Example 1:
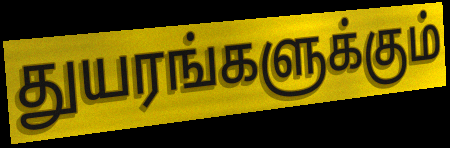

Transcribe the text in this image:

துயரங்களுக்கும்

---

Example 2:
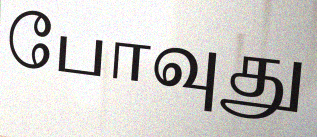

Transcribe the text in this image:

போவுது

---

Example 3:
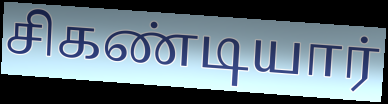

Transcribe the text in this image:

சிகண்டியார்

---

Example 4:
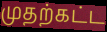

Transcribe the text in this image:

முதற்கட்ட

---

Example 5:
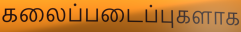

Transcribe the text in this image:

கலைப்படைப்புகளாக